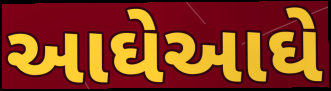
આઘેઆઘે